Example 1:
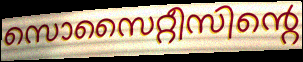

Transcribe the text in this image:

സൊസൈറ്റീസിന്റെ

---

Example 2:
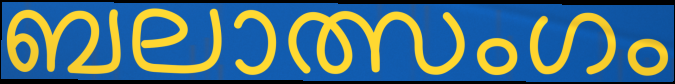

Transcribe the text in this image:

ബലാത്സംഗം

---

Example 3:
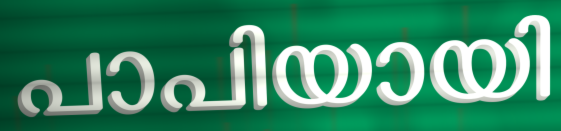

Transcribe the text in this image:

പാപിയായി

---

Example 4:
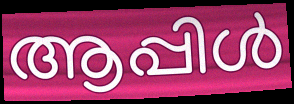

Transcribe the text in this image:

ആപ്പിൾ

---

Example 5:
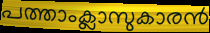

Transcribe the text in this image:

പത്താംക്ലാസുകാരൻ